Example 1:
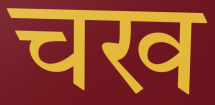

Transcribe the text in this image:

चख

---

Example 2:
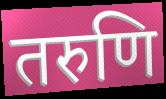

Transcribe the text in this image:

तरुणि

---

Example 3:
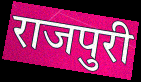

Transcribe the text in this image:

राजपुरी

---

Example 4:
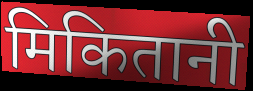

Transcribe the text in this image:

मिकितानी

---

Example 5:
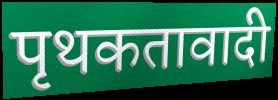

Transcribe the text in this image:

पृथकतावादी